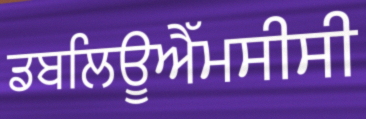
ਡਬਲਿਊਐੱਮਸੀਸੀ